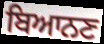
ਬਿਆਨਣ